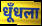
धूँधला